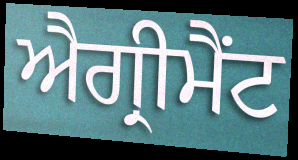
ਐਗ੍ਰੀਮੈਂਟ